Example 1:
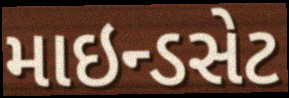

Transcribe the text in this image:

માઇન્ડસેટ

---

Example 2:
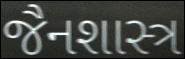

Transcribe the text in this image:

જૈનશાસ્ત્ર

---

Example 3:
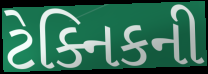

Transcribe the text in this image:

ટેક્નિકની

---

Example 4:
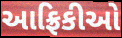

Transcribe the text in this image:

આફ્રિકીઓ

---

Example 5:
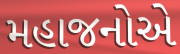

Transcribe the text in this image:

મહાજનોએ